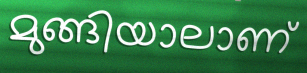
മുങ്ങിയാലാണ്